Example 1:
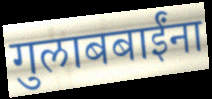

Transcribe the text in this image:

गुलाबबाईंना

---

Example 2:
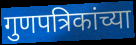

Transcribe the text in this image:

गुणपत्रिकांच्या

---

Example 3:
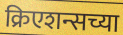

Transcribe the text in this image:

क्रिएशन्सच्या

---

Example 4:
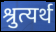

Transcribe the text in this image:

श्रुत्यर्थ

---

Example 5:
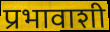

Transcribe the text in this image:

प्रभावाशी